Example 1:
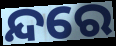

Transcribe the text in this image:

ନ୍ଦରେ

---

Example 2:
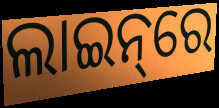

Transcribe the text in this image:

ଲାଇନ୍‌ରେ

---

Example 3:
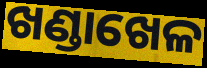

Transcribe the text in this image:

ଖଣ୍ଡାଖେଳ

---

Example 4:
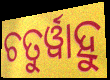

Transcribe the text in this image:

ଚତୁର୍ୱାହୁ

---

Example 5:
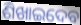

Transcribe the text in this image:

ଶିଖାଇଦେବ